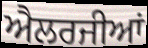
ਐਲਰਜੀਆਂ